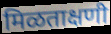
मिळताक्षणी